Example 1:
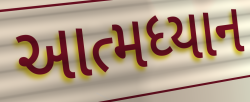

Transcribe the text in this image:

આત્મધ્યાન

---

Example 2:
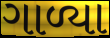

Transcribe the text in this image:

ગાળ્યા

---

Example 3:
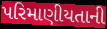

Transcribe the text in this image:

પરિમાણીયતાની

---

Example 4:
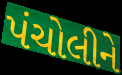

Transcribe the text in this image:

પંચોલીને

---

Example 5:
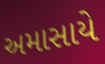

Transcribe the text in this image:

અમાસાયે